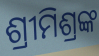
ଶ୍ରୀମିଶ୍ରଙ୍କ